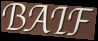
BAIF